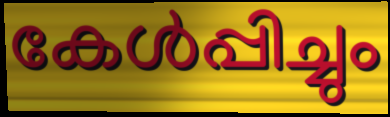
കേൾപ്പിച്ചും